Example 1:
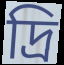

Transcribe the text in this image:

দ্রি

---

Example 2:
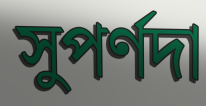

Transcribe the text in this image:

সুপর্ণদা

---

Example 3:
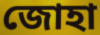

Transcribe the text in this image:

জোহা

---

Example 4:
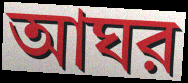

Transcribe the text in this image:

আঘর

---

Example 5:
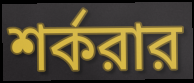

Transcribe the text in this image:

শর্করার